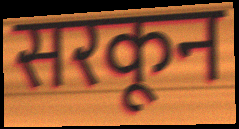
सरकून